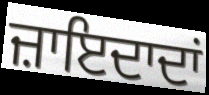
ਜ਼ਾਇਦਾਦਾਂ